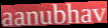
aanubhav